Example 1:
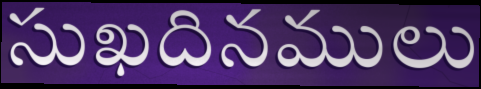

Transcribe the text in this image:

సుఖదినములు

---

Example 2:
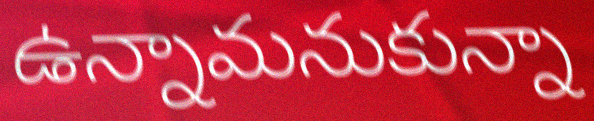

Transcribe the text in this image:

ఉన్నామనుకున్నా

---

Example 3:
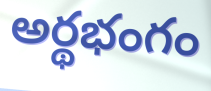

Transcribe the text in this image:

అర్థభంగం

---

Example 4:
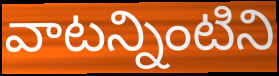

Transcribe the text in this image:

వాటన్నింటిని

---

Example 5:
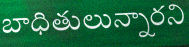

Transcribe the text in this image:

బాధితులున్నారని